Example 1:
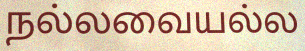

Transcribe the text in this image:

நல்லவையல்ல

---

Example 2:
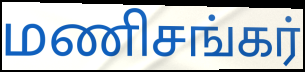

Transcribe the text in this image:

மணிசங்கர்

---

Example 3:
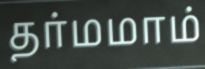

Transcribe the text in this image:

தர்மமாம்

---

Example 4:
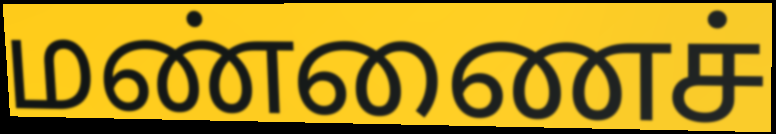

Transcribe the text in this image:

மண்ணைச்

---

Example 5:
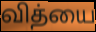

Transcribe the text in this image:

வித்யை